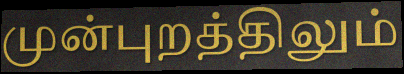
முன்புறத்திலும்